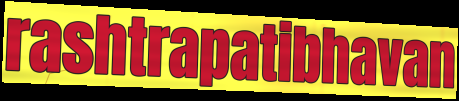
rashtrapatibhavan